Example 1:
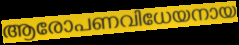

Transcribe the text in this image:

ആരോപണവിധേയനായ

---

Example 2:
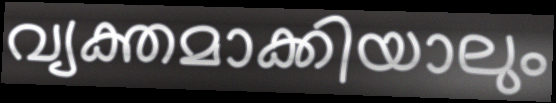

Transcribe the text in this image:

വ്യക്തമാക്കിയാലും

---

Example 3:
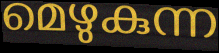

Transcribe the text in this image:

മെഴുകുന്ന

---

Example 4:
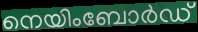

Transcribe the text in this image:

നെയിംബോർഡ്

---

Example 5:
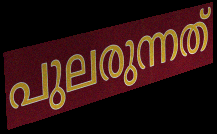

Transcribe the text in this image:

പുലരുന്നത്